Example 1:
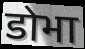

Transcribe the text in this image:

डोभा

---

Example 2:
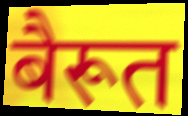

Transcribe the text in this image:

बैरूत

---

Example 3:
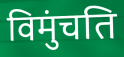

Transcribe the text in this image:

विमुंचति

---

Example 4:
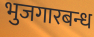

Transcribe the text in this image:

भुजगारबन्ध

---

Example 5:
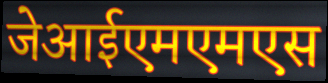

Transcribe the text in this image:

जेआईएमएमएस